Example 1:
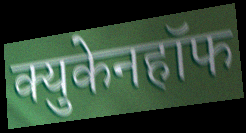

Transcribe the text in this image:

क्युकेनहॉफ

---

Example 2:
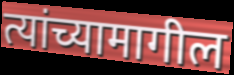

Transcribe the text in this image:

त्यांच्यामागील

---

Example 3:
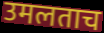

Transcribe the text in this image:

उमलताच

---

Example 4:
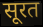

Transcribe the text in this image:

सूरत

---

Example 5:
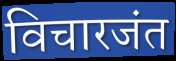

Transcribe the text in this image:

विचारजंत